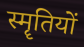
स्मॄतियों